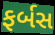
ફર્બસ